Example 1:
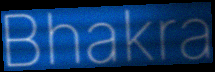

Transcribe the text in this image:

Bhakra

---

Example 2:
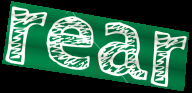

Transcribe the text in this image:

rear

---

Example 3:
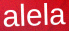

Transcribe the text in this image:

alela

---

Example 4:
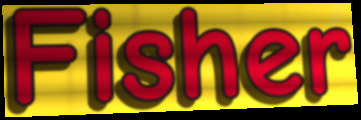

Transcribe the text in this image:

Fisher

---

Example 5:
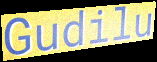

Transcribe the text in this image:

Gudilu